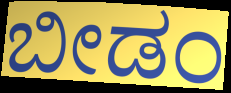
ಬೀಡಂ